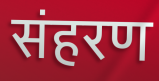
संहरण